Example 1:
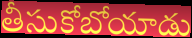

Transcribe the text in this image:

తీసుకోబోయాడు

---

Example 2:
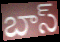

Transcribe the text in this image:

బాస్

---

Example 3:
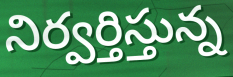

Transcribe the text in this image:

నిర్వర్తిస్తున్న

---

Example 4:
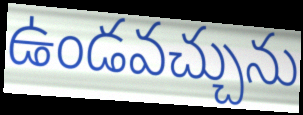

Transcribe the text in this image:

ఉండవచ్చును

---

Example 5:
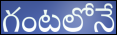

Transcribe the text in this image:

గంటలోనే